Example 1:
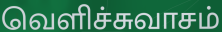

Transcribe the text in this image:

வெளிச்சுவாசம்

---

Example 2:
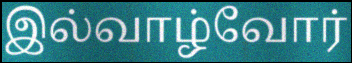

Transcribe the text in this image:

இல்வாழ்வோர்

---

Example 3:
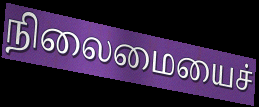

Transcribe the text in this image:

நிலைமையைச்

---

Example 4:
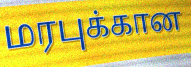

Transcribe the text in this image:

மரபுக்கான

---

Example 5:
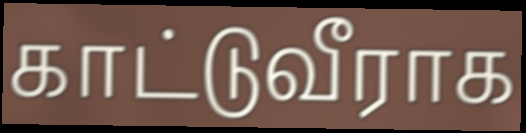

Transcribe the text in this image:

காட்டுவீராக